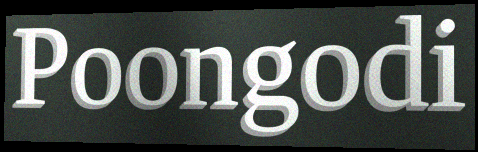
Poongodi